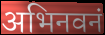
अभिनवनं